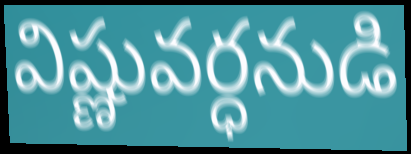
విష్ణువర్ధనుడి